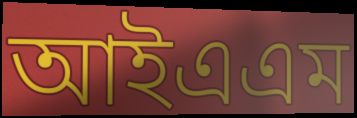
আইএএম